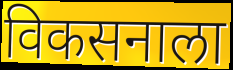
विकसनाला